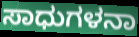
ಸಾಧುಗಳನಾ